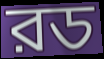
রড